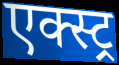
एक्स्ट्र